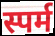
स्पर्म